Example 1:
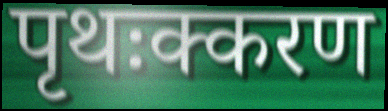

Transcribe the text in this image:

पृथःक्करण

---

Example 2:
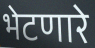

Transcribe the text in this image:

भेटणारे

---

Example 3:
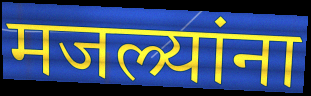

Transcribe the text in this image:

मजल्यांना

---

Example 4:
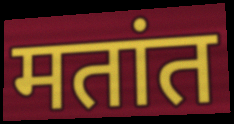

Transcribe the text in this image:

मतांत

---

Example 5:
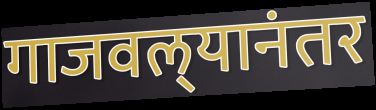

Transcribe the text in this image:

गाजवल्यानंतर